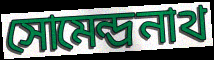
সোমেন্দ্রনাথ